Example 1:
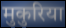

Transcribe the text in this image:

मुकुरिया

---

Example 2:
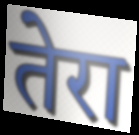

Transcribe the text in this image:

तेरा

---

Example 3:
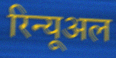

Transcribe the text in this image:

रिन्यूअल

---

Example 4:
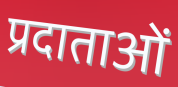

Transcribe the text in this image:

प्रदाताओं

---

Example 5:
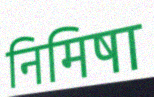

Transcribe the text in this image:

निमिषा